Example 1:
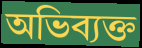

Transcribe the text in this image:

অভিব্যক্ত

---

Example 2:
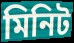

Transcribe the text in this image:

মিনিট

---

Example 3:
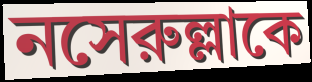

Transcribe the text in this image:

নসেরুল্লাকে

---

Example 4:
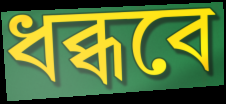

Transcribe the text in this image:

ধব্ধবে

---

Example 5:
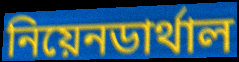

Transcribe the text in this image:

নিয়েনডার্থাল